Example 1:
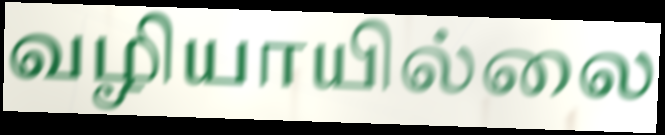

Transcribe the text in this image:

வழியாயில்லை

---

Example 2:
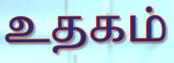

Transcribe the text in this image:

உதகம்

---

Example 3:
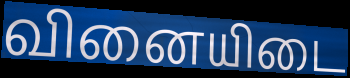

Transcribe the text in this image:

வினையிடை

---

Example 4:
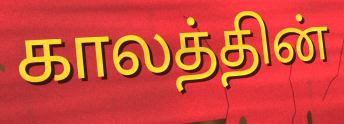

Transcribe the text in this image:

காலத்தின்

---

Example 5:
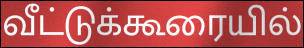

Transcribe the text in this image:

வீட்டுக்கூரையில்